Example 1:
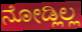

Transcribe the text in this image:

ನೋಡ್ಲಿಲ್ಲ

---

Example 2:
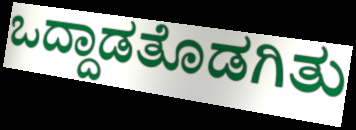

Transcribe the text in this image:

ಒದ್ದಾಡತೊಡಗಿತು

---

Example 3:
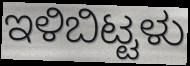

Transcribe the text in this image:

ಇಳಿಬಿಟ್ಟಳು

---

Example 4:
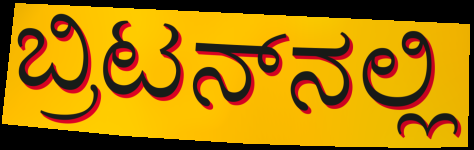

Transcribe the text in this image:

ಬ್ರಿಟನ್‌ನಲ್ಲಿ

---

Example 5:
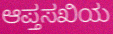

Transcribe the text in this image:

ಆಪ್ತಸಖಿಯ